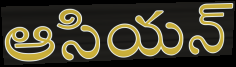
ఆసియన్